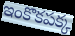
ఇంకొకపక్క